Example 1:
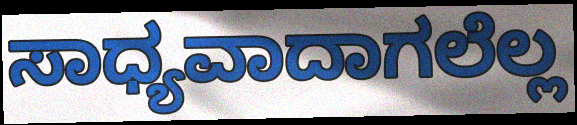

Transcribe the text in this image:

ಸಾಧ್ಯವಾದಾಗಲೆಲ್ಲ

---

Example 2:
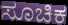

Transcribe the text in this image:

ಸೂಚಿಕ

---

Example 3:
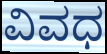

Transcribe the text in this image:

ವಿವಧ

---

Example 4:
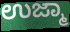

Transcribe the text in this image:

ಉಜ್ಮಾ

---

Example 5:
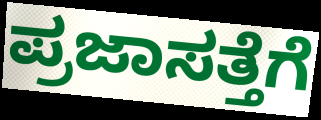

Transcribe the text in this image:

ಪ್ರಜಾಸತ್ತೆಗೆ